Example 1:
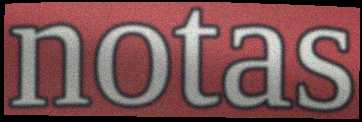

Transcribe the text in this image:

notas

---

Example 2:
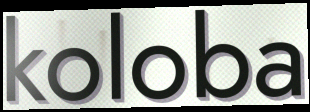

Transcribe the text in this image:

koloba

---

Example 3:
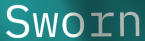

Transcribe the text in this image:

Sworn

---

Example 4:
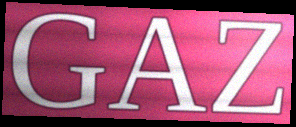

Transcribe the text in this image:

GAZ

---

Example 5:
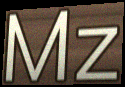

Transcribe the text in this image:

Mz